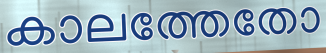
കാലത്തേതോ